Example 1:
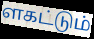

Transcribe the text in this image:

ளகட்டும்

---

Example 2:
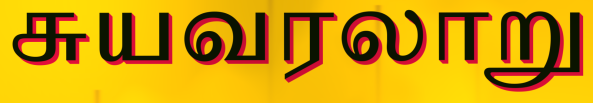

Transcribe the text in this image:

சுயவரலாறு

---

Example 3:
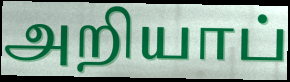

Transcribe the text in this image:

அறியாப்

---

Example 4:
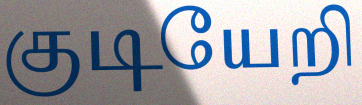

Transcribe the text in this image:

குடியேறி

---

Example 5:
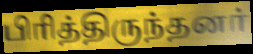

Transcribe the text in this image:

பிரித்திருந்தனர்